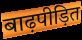
बाढ़पीड़ित